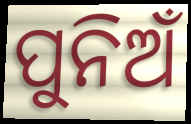
ପୁନିଅଁ